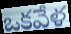
ఒకవేళ